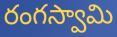
రంగస్వామి